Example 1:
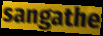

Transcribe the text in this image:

sangathe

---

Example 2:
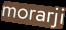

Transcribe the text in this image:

morarji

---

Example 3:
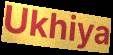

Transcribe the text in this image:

Ukhiya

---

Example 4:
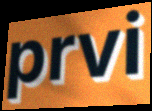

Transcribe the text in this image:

prvi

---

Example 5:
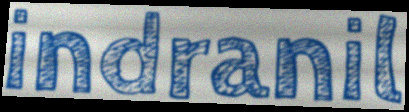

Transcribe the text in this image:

indranil